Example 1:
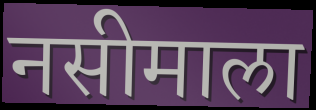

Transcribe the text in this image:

नसीमाला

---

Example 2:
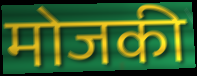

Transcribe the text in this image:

मोजकी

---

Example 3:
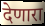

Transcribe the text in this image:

देणारा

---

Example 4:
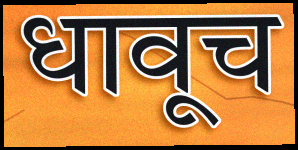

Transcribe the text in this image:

धावूच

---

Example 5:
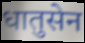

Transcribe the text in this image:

धातुसेन